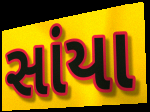
સાંયા